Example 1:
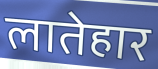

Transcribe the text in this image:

लातेहार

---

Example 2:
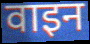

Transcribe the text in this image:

वाइन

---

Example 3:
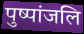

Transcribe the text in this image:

पुष्‍पांजलि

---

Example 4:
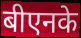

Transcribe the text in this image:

बीएनके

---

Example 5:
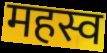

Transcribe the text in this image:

महस्व